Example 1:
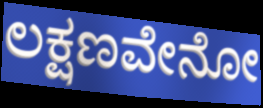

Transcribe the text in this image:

ಲಕ್ಷಣವೇನೋ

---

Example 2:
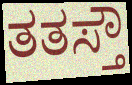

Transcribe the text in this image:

ತತಸ್ತೌ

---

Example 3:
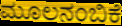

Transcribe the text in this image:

ಮೂಲನಂಬಿಕೆ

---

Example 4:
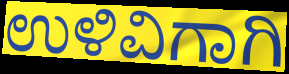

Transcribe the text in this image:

ಉಳಿವಿಗಾಗಿ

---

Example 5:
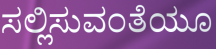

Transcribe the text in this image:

ಸಲ್ಲಿಸುವಂತೆಯೂ